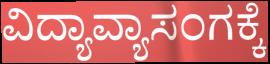
ವಿದ್ಯಾವ್ಯಾಸಂಗಕ್ಕೆ